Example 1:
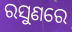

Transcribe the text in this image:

ରସୁଣରେ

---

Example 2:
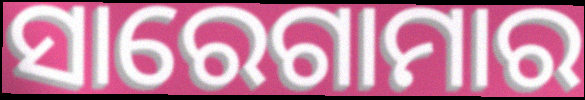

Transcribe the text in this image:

ସାରେଗାମାର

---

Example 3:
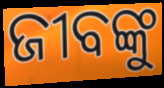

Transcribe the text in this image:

ଜୀବଙ୍କୁ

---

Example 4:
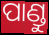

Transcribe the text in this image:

ପାଣ୍ଡୁ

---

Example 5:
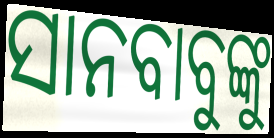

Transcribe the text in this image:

ସାନବାବୁଙ୍କୁ